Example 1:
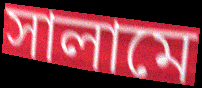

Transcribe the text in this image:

সালামে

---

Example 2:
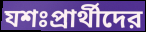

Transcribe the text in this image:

যশঃপ্রার্থীদের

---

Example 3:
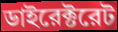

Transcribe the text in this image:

ডাইরেক্টরেট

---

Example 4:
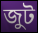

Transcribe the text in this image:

জুট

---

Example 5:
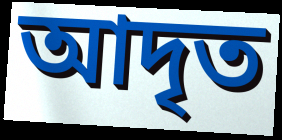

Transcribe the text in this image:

আদৃত